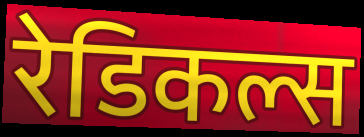
रेडिकल्स